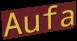
Aufa